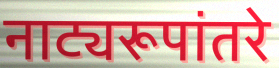
नाट्यरूपांतरे